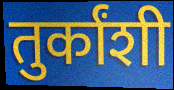
तुर्कांशी